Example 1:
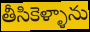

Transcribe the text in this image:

తీసికెళ్ళాను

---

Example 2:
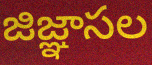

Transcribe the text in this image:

జిజ్ఞాసల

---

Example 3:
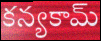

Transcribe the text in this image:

కన్యకామ్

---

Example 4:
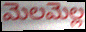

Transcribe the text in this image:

మెలమెల్ల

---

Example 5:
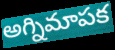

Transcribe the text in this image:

అగ్నిమాపక